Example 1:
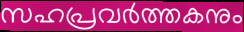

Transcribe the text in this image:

സഹപ്രവർത്തകനും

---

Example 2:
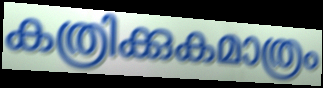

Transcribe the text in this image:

കത്രിക്കുകമാത്രം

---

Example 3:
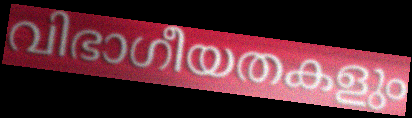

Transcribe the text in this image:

വിഭാഗീയതകളും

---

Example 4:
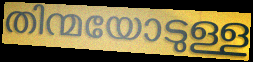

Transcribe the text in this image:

തിന്മയോടുള്ള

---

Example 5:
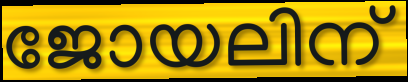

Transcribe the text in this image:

ജോയലിന്